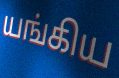
யங்கிய